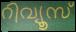
റിവ്യൂസ്